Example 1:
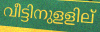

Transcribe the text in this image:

വീട്ടിനുളളില്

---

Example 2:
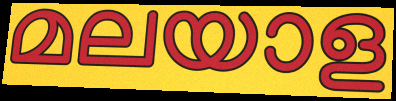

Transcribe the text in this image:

മലയാള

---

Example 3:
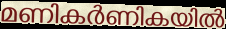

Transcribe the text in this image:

മണികർണികയിൽ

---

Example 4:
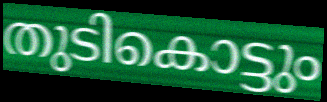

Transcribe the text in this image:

തുടികൊട്ടും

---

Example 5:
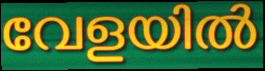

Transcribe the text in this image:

വേളയിൽ